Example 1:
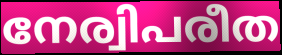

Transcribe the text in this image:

നേര്വിപരീത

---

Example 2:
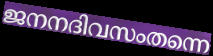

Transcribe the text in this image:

ജനനദിവസംതന്നെ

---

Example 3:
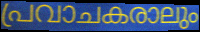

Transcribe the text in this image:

പ്രവാചകരാലും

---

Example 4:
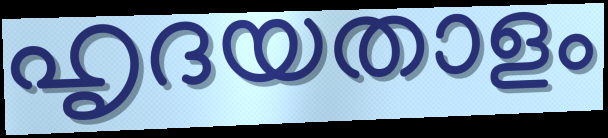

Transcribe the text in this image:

ഹൃദയതാളം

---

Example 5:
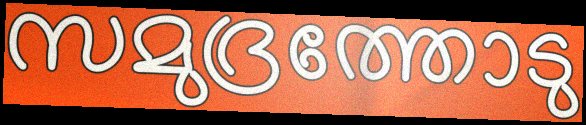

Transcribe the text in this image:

സമുദ്രത്തോടു